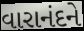
વારાનંદને